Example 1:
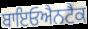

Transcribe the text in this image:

ਬਾਇਓਐਨਟੈਕ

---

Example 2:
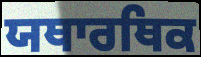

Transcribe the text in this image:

ਯਥਾਰਥਿਕ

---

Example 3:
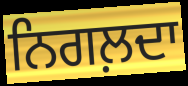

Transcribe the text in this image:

ਨਿਗਲ਼ਦਾ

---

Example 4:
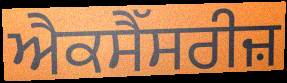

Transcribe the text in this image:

ਐਕਸੈੱਸਰੀਜ਼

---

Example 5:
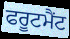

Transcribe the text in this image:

ਫਰੂਟਮੈਂਟ